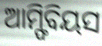
ଆମ୍ଫିବିୟସ